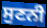
ਸੁਣਨੀ